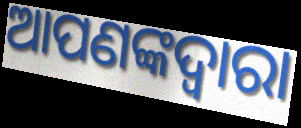
ଆପଣଙ୍କଦ୍ବାରା